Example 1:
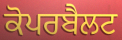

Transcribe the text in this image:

ਕੋਪਰਬੈਲਟ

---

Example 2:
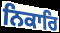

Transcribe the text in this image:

ਨਿਕਾਰਿ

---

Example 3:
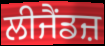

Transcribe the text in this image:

ਲੀਜੈਂਡਜ਼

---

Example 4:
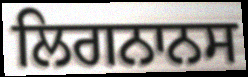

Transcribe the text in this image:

ਲਿਗਨਾਨਸ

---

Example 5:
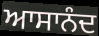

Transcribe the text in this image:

ਆਸਾਨੰਦ